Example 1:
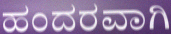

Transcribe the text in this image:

ಹಂದರವಾಗಿ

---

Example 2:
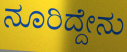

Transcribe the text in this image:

ನೂರಿದ್ದೇನು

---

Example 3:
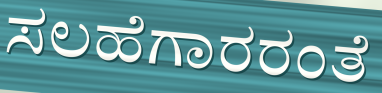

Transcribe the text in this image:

ಸಲಹೆಗಾರರಂತೆ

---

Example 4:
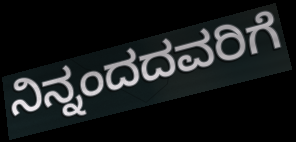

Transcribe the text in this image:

ನಿನ್ನಂದದವರಿಗೆ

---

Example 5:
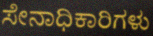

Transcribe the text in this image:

ಸೇನಾಧಿಕಾರಿಗಳು